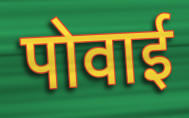
पोवाई